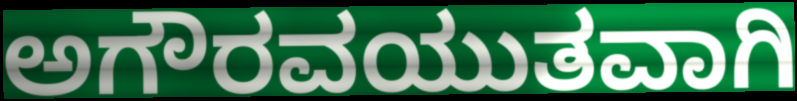
ಅಗೌರವಯುತವಾಗಿ